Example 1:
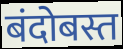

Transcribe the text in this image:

बंदोबस्त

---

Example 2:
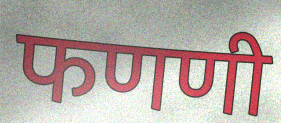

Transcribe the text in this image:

फणणी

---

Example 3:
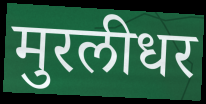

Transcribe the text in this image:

मुरलीधर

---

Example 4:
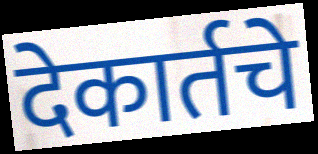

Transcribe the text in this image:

देकार्तचे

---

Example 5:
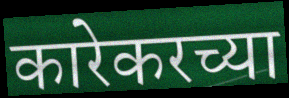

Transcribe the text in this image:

कारेकरच्या